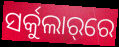
ସର୍କୁଲାର୍‌ରେ